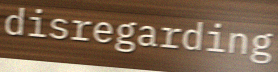
disregarding